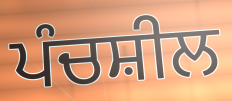
ਪੰਚਸ਼ੀਲ